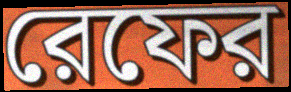
রেফের